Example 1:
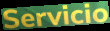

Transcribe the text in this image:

Servicio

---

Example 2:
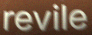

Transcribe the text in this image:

revile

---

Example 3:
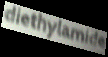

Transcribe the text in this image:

diethylamide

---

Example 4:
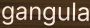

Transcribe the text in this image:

gangula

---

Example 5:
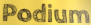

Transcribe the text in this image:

Podium